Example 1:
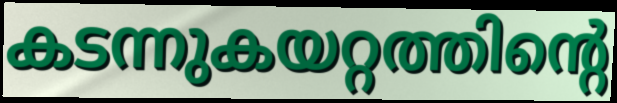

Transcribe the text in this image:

കടന്നുകയറ്റത്തിന്റെ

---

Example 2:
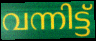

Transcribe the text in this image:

വന്നിട്ട്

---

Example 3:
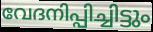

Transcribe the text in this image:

വേദനിപ്പിച്ചിട്ടും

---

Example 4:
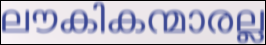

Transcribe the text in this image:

ലൗകികന്മാരല്ല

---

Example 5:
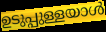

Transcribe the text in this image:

ഉടുപ്പുള്ളയാൾ